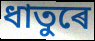
ধাতুৰে